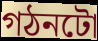
গঠনটো